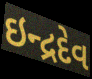
ઇન્દ્રદેવ